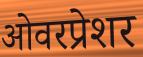
ओवरप्रेशर